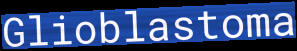
Glioblastoma